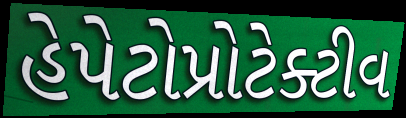
હેપેટોપ્રોટેક્ટીવ